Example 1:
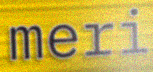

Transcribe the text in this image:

meri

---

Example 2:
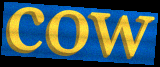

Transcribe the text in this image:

cow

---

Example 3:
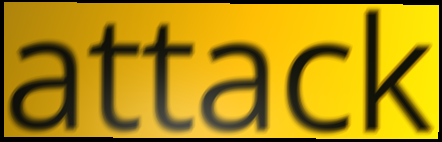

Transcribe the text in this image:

attack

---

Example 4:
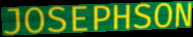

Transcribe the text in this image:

JOSEPHSON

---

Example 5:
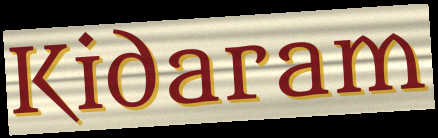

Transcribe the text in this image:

Kidaram